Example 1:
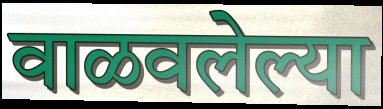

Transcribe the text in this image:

वाळवलेल्या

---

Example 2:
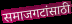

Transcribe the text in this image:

समाजगटांसाठी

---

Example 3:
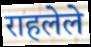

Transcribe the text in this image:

राहलेले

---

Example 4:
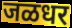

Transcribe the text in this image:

जळधर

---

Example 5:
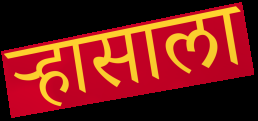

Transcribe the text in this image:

ऱ्हासाला